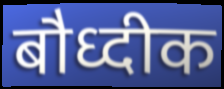
बौध्दीक